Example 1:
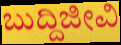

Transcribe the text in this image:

ಬುದ್ದಿಜೀವಿ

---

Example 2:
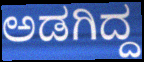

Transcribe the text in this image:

ಅಡಗಿದ್ದ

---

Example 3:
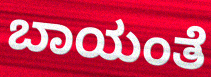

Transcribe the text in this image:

ಬಾಯಂತೆ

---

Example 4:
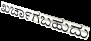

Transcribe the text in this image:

ಖರ್ಚಾಗಬಹುದು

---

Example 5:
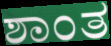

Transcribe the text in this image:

ಶಾಂತ